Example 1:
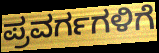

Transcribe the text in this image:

ಪ್ರವರ್ಗಗಳಿಗೆ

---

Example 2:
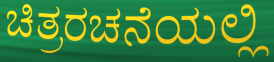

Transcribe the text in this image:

ಚಿತ್ರರಚನೆಯಲ್ಲಿ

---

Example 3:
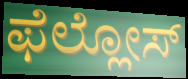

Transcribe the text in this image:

ಫೆಲ್ಲೋಸ್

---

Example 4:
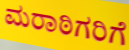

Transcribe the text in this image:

ಮರಾಠಿಗರಿಗೆ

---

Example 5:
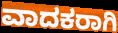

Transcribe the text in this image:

ವಾದಕರಾಗಿ